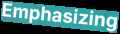
Emphasizing